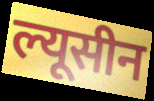
ल्यूसीन